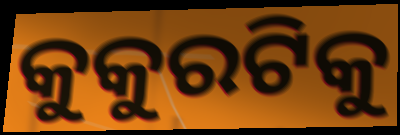
କୁକୁରଟିକୁ